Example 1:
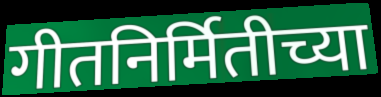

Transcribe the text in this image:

गीतनिर्मितीच्या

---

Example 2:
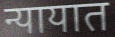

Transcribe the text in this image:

न्यायात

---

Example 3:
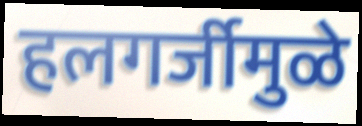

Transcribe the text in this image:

हलगर्जीमुळे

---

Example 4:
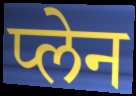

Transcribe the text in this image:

प्लेन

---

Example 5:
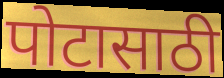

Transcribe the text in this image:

पोटासाठी